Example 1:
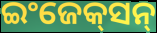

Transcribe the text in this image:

ଇଂଜେକ୍‌ସନ୍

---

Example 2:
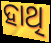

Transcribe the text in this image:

ହାଥି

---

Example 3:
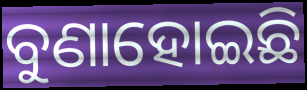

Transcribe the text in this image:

ବୁଣାହୋଇଛି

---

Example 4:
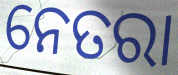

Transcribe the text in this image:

ନେତରା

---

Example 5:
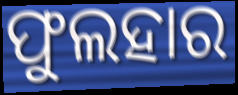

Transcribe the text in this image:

ଫୁଲହାର